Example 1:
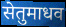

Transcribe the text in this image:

सेतुमाधव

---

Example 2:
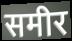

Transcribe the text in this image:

समीर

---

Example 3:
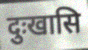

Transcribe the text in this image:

दुःखासि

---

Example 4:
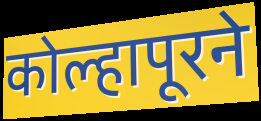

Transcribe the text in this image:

कोल्हापूरने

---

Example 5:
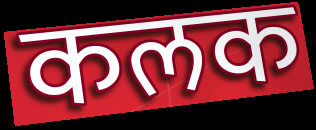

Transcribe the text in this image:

कलक